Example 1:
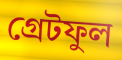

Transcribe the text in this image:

গ্ৰেটফুল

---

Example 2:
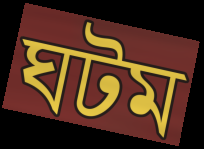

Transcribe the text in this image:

ঘটম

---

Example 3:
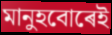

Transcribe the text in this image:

মানুহবোৰেই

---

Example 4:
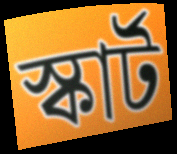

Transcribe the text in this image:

স্কাৰ্ট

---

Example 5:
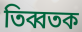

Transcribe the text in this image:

তিব্বতক